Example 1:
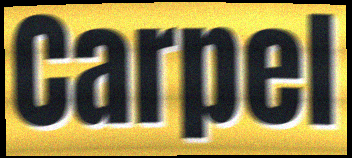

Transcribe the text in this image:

Carpel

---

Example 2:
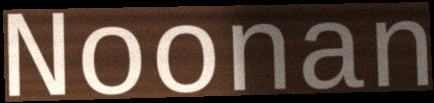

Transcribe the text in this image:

Noonan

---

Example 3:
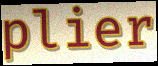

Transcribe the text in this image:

plier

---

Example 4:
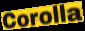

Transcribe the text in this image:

Corolla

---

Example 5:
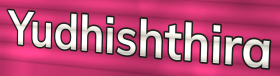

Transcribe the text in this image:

Yudhishthira